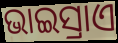
ଭାଇସ୍ରାଏ